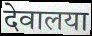
देवालया